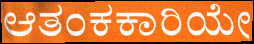
ಆತಂಕಕಾರಿಯೇ